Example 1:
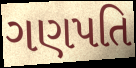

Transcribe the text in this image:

ગણપતિ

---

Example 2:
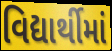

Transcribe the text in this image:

વિદ્યાર્થીમાં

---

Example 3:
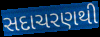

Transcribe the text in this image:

સદાચરણથી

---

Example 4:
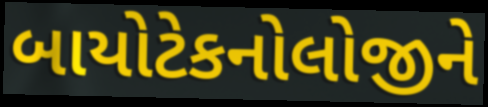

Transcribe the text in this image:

બાયોટેકનોલોજીને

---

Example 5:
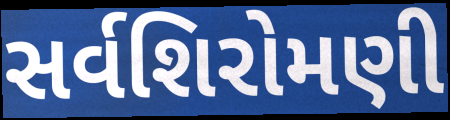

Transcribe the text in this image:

સર્વશિરોમણી